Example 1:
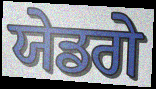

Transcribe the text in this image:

ਯੇਡਗੇ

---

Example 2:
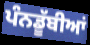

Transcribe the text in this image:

ਪੰਨਡੂੱਬੀਆਂ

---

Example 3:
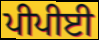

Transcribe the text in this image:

ਪੀਪੀਈ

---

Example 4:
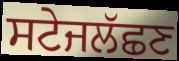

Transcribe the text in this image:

ਸਟੇਜਲੱਛਣ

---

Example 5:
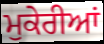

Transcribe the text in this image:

ਮੁਕੇਰੀਆਂ